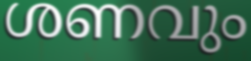
ശണവും